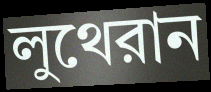
লুথেরান